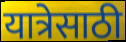
यात्रेसाठी